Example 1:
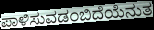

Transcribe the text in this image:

ಪಾಳಿಸುವಡಂಬಿದೆಯೆನುತ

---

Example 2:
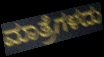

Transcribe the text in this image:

ಮಾತ್ರೆಗಳದು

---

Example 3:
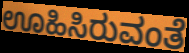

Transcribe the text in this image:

ಊಹಿಸಿರುವಂತೆ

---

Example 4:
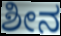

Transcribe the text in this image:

ಶೀನ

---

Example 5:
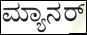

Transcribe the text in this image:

ಮ್ಯಾನರ್